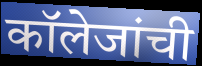
कॉलेजांची